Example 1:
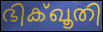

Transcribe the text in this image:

ഭിക്ഖൂതി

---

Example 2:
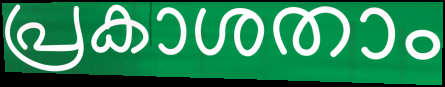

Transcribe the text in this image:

പ്രകാശതാം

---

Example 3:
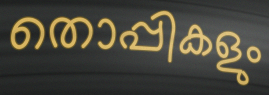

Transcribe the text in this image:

തൊപ്പികളും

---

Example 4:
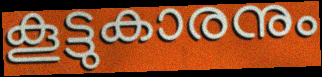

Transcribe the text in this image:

കൂട്ടുകാരനും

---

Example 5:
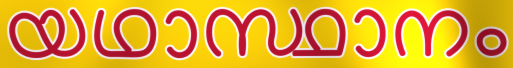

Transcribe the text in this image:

യഥാസ്ഥാനം